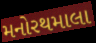
મનોરથમાલા